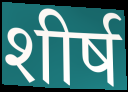
शीर्ष